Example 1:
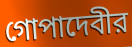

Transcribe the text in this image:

গোপাদেবীর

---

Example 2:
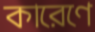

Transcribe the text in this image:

কারেণে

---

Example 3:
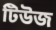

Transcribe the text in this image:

টিউজ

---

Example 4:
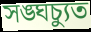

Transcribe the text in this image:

সঙ্ঘচ্যুত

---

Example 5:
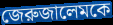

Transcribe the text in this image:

জেরুজালেমকে